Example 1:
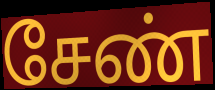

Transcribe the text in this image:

சேண்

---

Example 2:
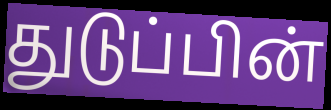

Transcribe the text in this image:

துடுப்பின்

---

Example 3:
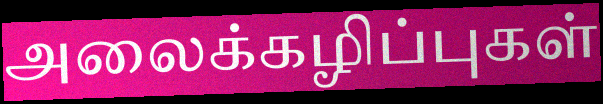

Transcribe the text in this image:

அலைக்கழிப்புகள்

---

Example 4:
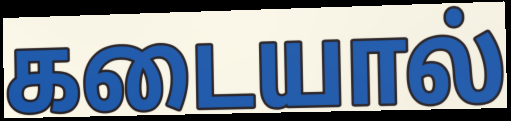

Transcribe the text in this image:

கடையால்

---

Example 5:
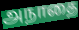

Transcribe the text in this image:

அநாதை